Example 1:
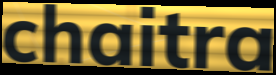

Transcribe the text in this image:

chaitra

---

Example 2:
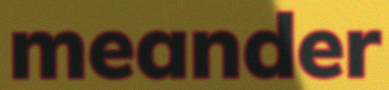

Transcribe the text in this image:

meander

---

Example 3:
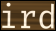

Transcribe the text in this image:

ird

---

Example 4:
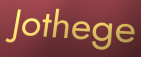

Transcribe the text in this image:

Jothege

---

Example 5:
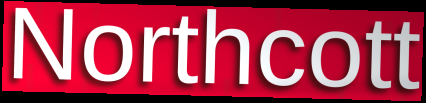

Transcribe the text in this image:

Northcott